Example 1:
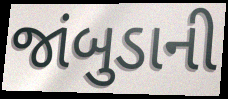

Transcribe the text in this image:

જાંબુડાની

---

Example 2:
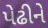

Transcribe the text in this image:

પેઢીને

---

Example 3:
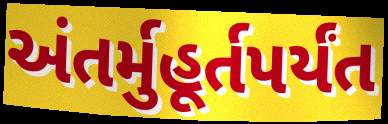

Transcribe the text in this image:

અંતર્મુહૂર્તપર્યંત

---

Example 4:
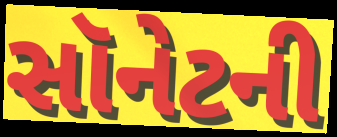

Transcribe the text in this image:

સૉનેટની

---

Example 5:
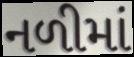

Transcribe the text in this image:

નળીમાં